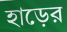
হাড়ের